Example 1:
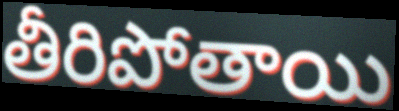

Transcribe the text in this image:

తీరిపోతాయి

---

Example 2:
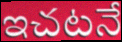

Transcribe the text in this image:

ఇచటనే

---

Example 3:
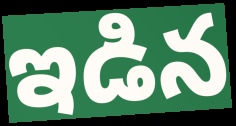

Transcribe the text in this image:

ఇడిన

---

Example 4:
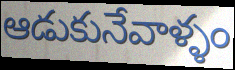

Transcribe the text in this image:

ఆడుకునేవాళ్ళం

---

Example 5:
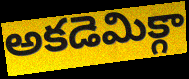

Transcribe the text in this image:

అకడెమిక్గా